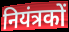
नियंत्रकों